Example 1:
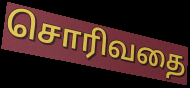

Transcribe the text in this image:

சொரிவதை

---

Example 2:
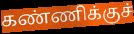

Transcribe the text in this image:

கண்ணிக்குச்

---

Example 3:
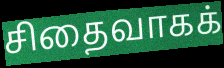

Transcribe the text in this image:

சிதைவாகக்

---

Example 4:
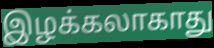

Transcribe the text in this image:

இழக்கலாகாது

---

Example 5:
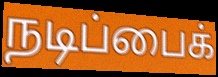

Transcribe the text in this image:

நடிப்பைக்